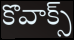
కొవాక్స్